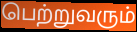
பெற்றுவரும்